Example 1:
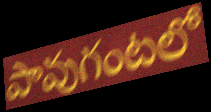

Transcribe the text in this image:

పావుగంటలో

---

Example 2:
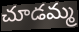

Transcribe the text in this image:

చూడమ్మ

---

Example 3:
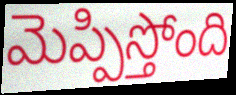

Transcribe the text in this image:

మెప్పిస్తోంది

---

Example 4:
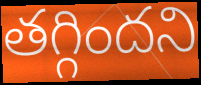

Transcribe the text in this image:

తగ్గిందని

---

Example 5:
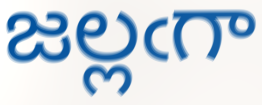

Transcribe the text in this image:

జల్లఁగా